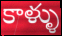
కాళ్ళు